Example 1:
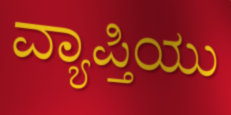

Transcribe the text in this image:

ವ್ಯಾಪ್ತಿಯು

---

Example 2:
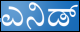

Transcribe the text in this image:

ಎನಿಡ್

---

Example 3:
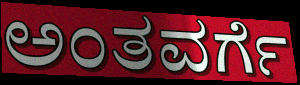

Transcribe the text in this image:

ಅಂತವರ್ಗೆ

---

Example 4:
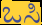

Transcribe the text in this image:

ಒಸಿ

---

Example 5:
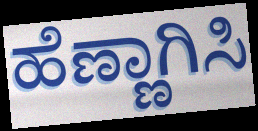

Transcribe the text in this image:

ಹೆಣ್ಣಾಗಿಸಿ